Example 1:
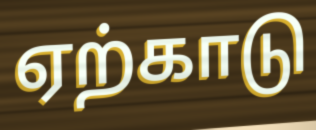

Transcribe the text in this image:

ஏற்காடு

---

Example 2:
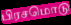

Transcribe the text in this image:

பிரசமொடு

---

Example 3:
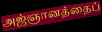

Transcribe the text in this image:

அஜ்ஞானத்தைப்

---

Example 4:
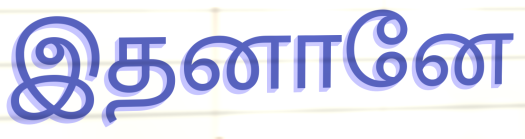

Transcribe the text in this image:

இதனானே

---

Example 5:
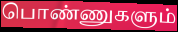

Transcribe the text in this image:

பொண்ணுகளும்